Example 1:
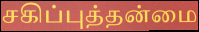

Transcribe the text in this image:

சகிப்புத்தன்மை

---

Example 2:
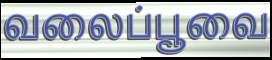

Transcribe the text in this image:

வலைப்பூவை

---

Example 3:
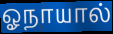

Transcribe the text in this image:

ஓநாயால்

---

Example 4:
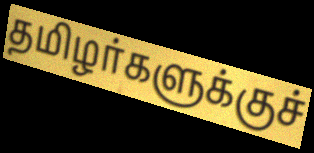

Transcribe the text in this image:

தமிழர்களுக்குச்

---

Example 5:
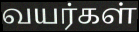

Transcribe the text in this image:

வயர்கள்